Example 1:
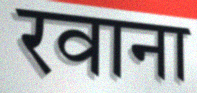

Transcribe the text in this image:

रवाना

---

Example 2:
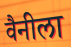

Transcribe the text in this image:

वैनीला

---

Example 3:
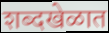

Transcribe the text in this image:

शब्दखेळात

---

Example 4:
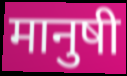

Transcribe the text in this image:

मानुषी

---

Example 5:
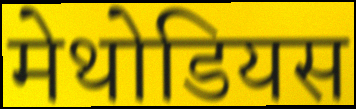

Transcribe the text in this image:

मेथोडियस